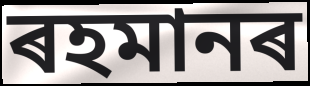
ৰহমানৰ